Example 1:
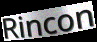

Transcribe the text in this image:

Rincon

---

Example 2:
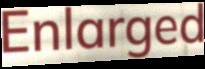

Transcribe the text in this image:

Enlarged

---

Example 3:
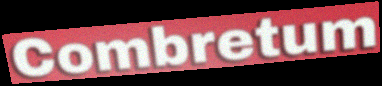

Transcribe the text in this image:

Combretum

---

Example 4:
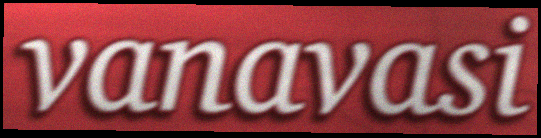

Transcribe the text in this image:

vanavasi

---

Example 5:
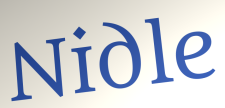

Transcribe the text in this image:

Nidle